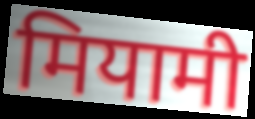
मियामी